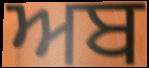
ਅਬ